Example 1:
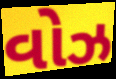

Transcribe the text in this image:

વોઝ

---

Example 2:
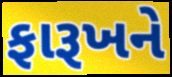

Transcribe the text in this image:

ફારૂખને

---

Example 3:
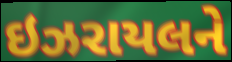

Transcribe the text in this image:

ઇઝરાયલને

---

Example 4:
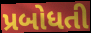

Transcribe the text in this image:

પ્રબોધતી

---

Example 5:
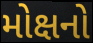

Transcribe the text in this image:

મોક્ષનો